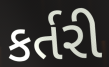
કર્તરી